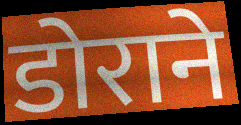
डोराने